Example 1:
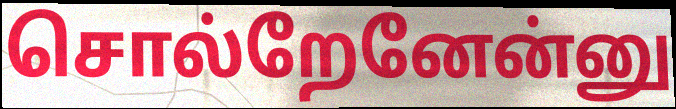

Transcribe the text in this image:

சொல்றேனேன்னு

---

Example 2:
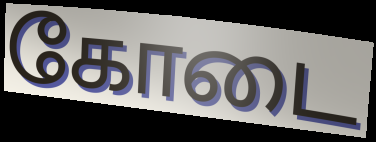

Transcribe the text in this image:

கோடை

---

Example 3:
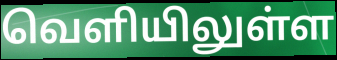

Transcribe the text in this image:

வெளியிலுள்ள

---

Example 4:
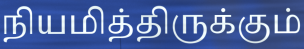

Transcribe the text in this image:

நியமித்திருக்கும்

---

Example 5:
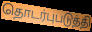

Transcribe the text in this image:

தொடர்புபடுத்தி